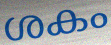
ശകം